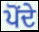
ਪੋਂਦੇ